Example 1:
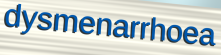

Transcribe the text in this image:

dysmenarrhoea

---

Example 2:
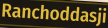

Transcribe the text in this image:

Ranchoddasji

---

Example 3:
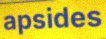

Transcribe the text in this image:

apsides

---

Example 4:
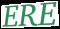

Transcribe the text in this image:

ERE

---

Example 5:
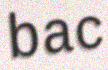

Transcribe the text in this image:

bac